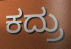
ಕದ್ರು